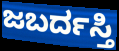
ಜಬರ್ದಸ್ತಿ